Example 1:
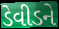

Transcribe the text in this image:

ડેવીડને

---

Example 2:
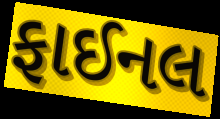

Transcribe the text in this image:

ફાઈનલ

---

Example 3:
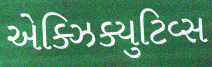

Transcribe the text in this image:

એક્ઝિક્યુટિવ્સ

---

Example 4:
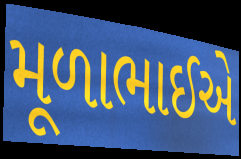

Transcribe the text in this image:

મૂળાભાઈએ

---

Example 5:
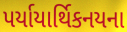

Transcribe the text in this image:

પર્યાયાર્થિકનયના